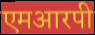
एमआरपी